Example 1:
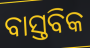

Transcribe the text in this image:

ବାସ୍ତବିକ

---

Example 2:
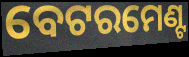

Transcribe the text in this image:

ବେଟରମେଣ୍ଟ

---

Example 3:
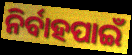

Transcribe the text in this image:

ନିର୍ବାହପାଇଁ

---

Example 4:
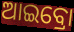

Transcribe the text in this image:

ଆଇବ୍ରୋ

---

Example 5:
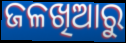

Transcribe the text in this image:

ଜଳଖିଆରୁ